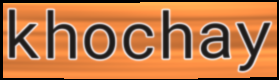
khochay